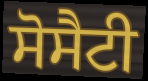
ਸੋਸੈਟੀ